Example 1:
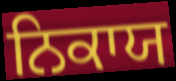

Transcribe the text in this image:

ਨਿਕਾਯ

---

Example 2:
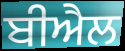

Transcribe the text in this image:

ਬੀਐਲ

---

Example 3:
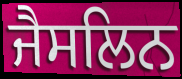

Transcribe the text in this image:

ਜੈਸਲਿਨ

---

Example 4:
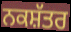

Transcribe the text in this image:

ਨਕਸ਼ੱਤਰ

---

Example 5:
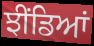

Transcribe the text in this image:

ਝੀਂਡਿਆਂ